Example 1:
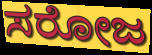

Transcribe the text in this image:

ಸರೋಜ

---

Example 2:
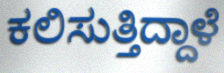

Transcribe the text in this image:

ಕಲಿಸುತ್ತಿದ್ದಾಳೆ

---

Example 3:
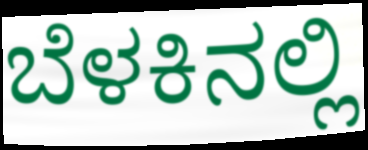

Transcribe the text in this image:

ಬೆಳಕಿನಲ್ಲಿ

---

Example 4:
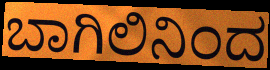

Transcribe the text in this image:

ಬಾಗಿಲಿನಿಂದ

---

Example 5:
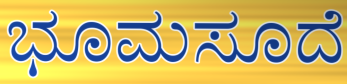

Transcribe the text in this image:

ಭೂಮಸೂದೆ